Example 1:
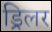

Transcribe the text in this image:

ड्रिलर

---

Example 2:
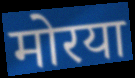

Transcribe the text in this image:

मोरया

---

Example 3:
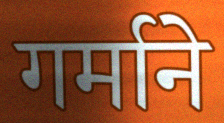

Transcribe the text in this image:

गर्माने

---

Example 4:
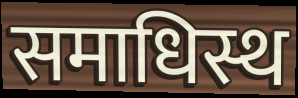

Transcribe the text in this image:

समाधिस्थ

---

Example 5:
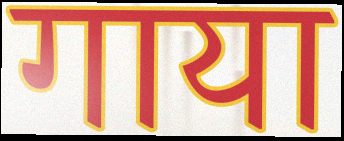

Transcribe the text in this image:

गाया